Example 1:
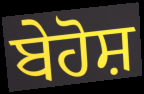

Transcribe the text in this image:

ਬੇਹੋਸ਼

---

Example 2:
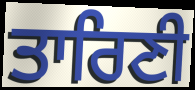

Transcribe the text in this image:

ਤਾਰਿਣੀ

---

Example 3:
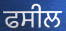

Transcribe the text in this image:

ਫਸੀਲ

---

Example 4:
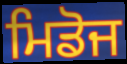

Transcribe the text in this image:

ਮਿਡੋਜ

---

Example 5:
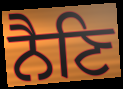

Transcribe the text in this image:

ਨੈਣਿ